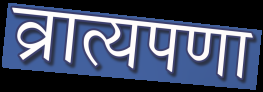
व्रात्यपणा